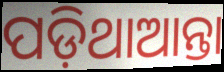
ପଡ଼ିଥାଆନ୍ତା